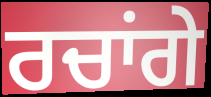
ਰਚਾਂਗੇ